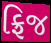
ફ્રિજ